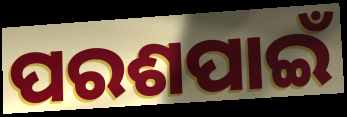
ପରଶପାଇଁ